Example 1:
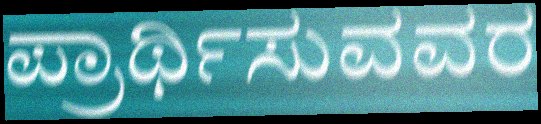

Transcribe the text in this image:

ಪ್ರಾರ್ಥಿಸುವವರ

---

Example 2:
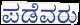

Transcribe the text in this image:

ಪಡೆವರು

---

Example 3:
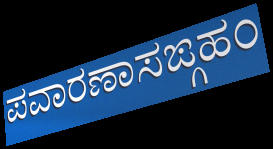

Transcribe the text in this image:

ಪವಾರಣಾಸಙ್ಗಹಂ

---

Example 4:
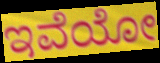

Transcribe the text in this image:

ಇವೆಯೋ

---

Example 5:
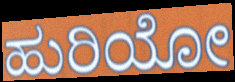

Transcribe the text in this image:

ಹುರಿಯೋ